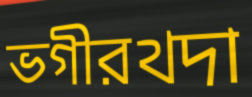
ভগীরথদা